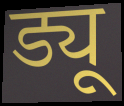
ड्यू